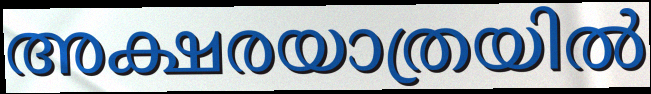
അക്ഷരയാത്രയിൽ